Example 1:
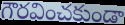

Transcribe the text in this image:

గౌరవించకుండా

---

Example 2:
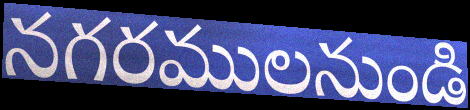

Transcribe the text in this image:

నగరములనుండి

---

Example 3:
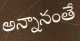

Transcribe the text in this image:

అన్నానంతే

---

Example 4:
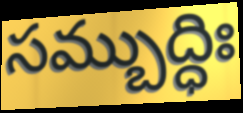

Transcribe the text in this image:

సమ్బుద్ధిః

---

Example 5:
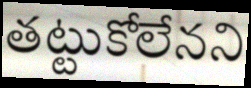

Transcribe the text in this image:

తట్టుకోలేనని